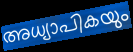
അധ്യാപികയും